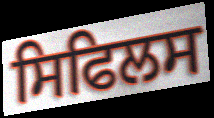
ਸਿਫਿਲਸ